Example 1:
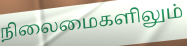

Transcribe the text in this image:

நிலைமைகளிலும்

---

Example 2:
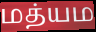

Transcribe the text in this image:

மத்யம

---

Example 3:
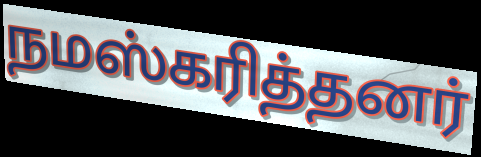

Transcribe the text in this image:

நமஸ்கரித்தனர்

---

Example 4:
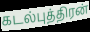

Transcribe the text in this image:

கடல்புத்திரன்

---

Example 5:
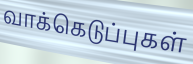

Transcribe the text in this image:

வாக்கெடுப்புகள்